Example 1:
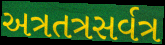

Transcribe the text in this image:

અત્રતત્રસર્વત્ર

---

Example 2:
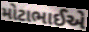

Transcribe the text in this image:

મોટાભાઈએ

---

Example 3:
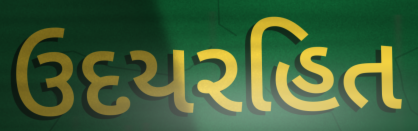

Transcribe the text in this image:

ઉદયરહિત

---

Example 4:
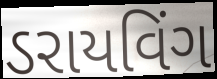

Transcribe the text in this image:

ડરાયવિંગ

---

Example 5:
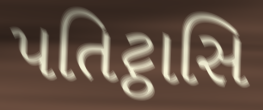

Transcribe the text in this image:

પતિટ્ઠાસિ